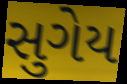
સુગેય